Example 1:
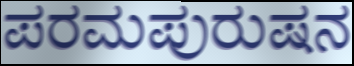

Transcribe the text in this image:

ಪರಮಪುರುಷನ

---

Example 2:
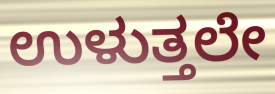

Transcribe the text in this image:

ಉಳುತ್ತಲೇ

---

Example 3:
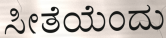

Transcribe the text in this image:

ಸೀತೆಯೆಂದು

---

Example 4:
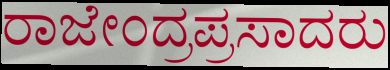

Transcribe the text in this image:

ರಾಜೇಂದ್ರಪ್ರಸಾದರು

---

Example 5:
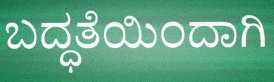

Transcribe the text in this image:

ಬದ್ಧತೆಯಿಂದಾಗಿ